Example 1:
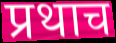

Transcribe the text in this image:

प्रथाच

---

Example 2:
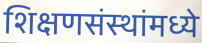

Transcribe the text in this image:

शिक्षणसंस्थांमध्ये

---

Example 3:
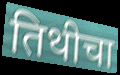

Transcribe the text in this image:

तिथीचा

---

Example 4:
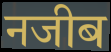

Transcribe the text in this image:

नजीब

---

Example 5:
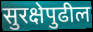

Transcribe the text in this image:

सुरक्षेपुढील